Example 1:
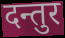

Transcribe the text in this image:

दन्तुर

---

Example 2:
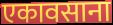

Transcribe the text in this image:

एकावसाना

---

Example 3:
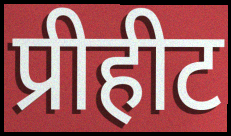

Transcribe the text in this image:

प्रीहीट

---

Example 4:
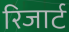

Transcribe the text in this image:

रिजार्ट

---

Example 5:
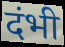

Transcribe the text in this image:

दंभी